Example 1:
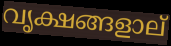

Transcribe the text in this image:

വൃക്ഷങ്ങളാല്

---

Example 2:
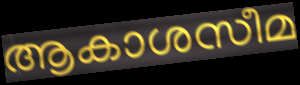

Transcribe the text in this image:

ആകാശസീമ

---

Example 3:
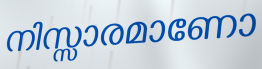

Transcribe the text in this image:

നിസ്സാരമാണോ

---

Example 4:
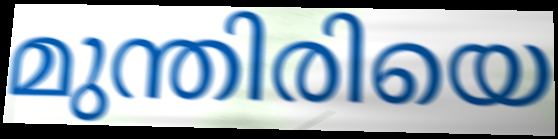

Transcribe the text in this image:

മുന്തിരിയെ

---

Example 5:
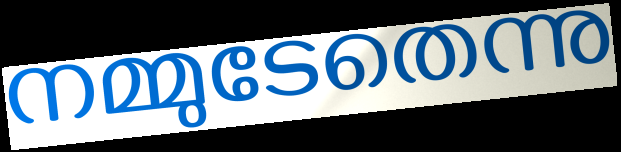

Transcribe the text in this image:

നമ്മുടേതെന്നു